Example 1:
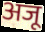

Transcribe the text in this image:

अजू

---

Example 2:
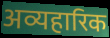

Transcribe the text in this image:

अव्यहारिक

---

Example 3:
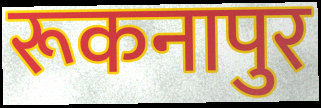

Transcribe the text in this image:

रूकनापुर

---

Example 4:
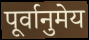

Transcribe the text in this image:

पूर्वानुमेय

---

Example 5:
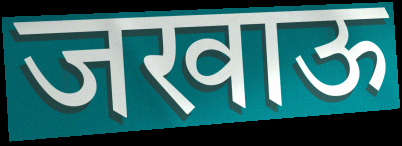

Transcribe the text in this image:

जखाऊ